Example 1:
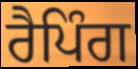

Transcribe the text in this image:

ਰੈਪਿੰਗ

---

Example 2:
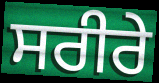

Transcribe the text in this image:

ਸਰੀਰੇ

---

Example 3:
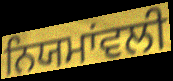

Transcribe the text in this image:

ਨਿਯਮਾਂਵਲੀ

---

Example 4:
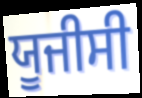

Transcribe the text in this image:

ਯੂਜੀਸੀ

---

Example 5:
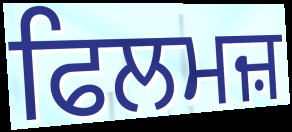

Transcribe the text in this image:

ਫਿਲਮਜ਼